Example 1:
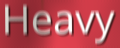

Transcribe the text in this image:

Heavy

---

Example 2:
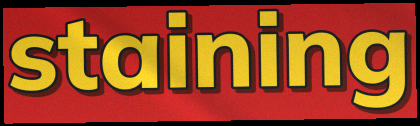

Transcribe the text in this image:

staining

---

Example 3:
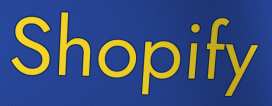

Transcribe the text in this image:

Shopify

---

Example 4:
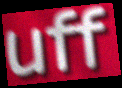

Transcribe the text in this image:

uff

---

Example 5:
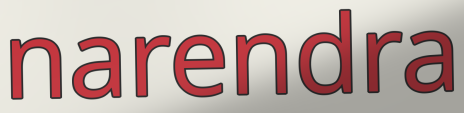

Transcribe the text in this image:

narendra